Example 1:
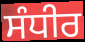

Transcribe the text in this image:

ਸੰਧੀਰ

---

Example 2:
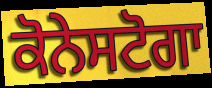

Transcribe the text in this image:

ਕੋਨੇਸਟੋਗਾ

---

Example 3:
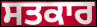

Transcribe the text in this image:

ਸਤਕਾਰ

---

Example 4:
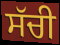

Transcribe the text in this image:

ਸੱਚੀ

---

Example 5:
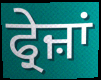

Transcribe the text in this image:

ਫ੍ਰੇਜ਼ਾਂ